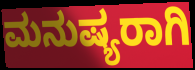
ಮನುಷ್ಯರಾಗಿ